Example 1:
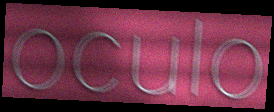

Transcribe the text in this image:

oculo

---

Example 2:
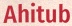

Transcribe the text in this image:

Ahitub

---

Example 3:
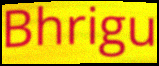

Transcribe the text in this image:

Bhrigu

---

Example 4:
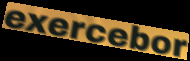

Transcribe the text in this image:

exercebor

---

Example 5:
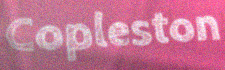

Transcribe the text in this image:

Copleston